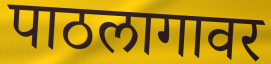
पाठलागावर